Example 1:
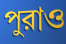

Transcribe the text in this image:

পুরাও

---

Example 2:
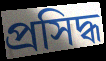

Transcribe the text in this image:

প্রসিদ্ধ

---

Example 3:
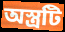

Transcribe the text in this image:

অস্ত্রটি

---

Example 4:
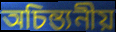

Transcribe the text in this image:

অচিন্ত্যনীয়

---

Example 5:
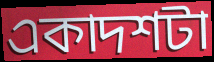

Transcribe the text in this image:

একাদশটা